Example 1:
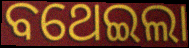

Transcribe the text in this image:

ବଥେଇଲା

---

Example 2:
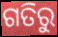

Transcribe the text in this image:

ଗତିରୁ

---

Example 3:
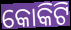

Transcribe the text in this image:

କୋକିଟି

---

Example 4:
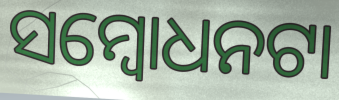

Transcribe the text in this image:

ସମ୍ବୋଧନଟା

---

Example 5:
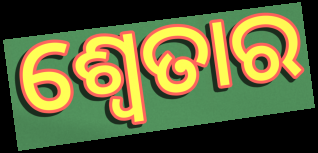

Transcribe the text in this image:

ଶ୍ୱେତାର